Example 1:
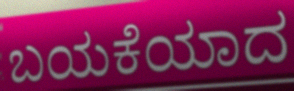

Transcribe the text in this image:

ಬಯಕೆಯಾದ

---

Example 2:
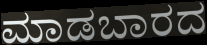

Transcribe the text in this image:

ಮಾಡಬಾರದ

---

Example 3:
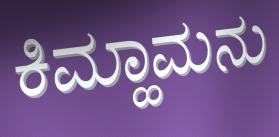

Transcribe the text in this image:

ಕಿಮ್ಹಾಮನು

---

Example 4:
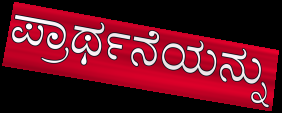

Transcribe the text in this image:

ಪ್ರಾರ್ಥನೆಯನ್ನು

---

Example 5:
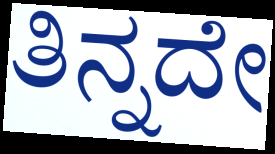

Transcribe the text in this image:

ತಿನ್ನದೇ